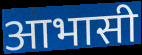
आभासी